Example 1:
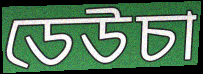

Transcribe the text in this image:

ডেউচা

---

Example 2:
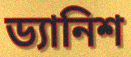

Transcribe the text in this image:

ড্যানিশ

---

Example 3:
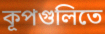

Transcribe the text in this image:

কূপগুলিতে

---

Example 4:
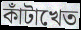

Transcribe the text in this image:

কাঁটাখেত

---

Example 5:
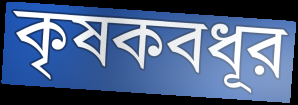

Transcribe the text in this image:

কৃষকবধূর